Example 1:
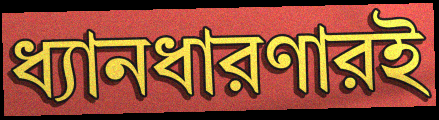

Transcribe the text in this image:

ধ্যানধারণারই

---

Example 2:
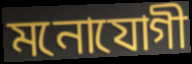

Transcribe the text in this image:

মনোযোগী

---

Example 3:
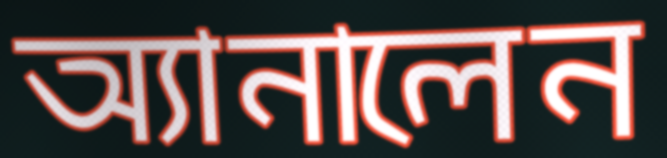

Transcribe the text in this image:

অ্যানালেন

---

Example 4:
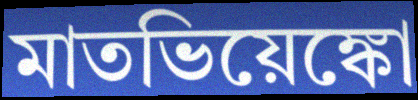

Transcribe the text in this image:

মাতভিয়েঙ্কো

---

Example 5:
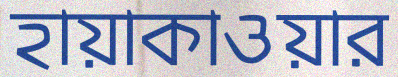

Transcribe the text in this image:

হায়াকাওয়ার